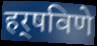
हर्षविणे